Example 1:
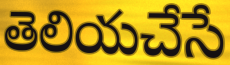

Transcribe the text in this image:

తెలియచేసే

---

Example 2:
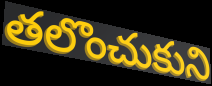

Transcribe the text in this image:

తలొంచుకుని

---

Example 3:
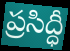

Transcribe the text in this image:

ప్రసిద్ధీ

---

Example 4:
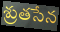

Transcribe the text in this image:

శ్రుతసేన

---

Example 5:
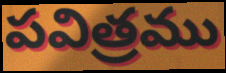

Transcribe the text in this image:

పవిత్రము